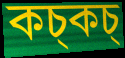
কচ্কচ্